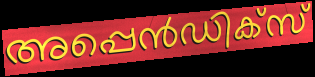
അപ്പെൻഡിക്സ്